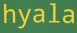
hyala